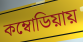
কম্বোডিয়ায়